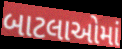
બાટલાઓમાં